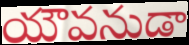
యౌవనుడా